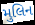
મુલિન